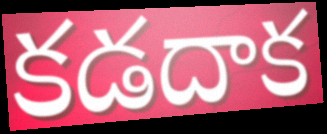
కడదాక